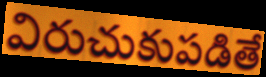
విరుచుకుపడితే